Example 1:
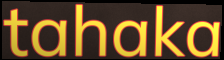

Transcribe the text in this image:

tahaka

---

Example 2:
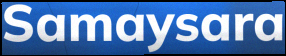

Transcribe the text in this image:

Samaysara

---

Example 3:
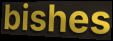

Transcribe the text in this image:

bishes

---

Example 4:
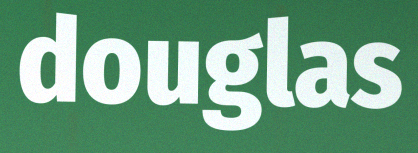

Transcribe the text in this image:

douglas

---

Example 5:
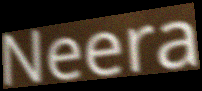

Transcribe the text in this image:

Neera